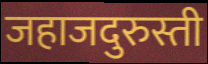
जहाजदुरुस्ती